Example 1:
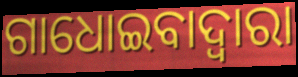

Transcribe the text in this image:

ଗାଧୋଇବାଦ୍ଵାରା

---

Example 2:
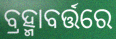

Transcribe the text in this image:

ବ୍ରହ୍ମାବର୍ତ୍ତରେ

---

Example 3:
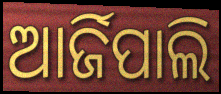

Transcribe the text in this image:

ଆର୍ଜିପାଲି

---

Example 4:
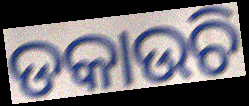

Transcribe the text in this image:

ଡକାଉଚି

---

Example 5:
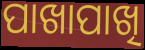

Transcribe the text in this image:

ପାଖାପାଖି